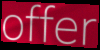
offer